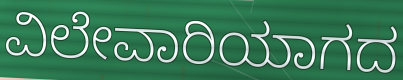
ವಿಲೇವಾರಿಯಾಗದ